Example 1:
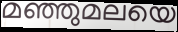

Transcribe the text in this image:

മഞ്ഞുമലയെ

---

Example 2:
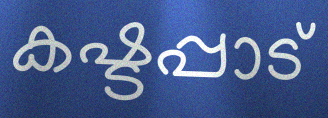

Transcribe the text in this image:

കഷ്ടപ്പാട്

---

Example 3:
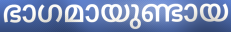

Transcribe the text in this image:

ഭാഗമായുണ്ടായ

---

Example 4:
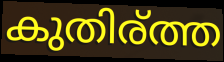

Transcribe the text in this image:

കുതിര്ത്ത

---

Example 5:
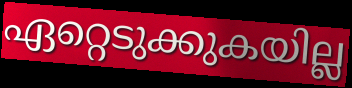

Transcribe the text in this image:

ഏറ്റെടുക്കുകയില്ല